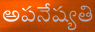
అపనేష్యతి